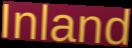
Inland